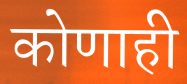
कोणाही